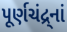
પૂર્ણચંદ્ર્નાં